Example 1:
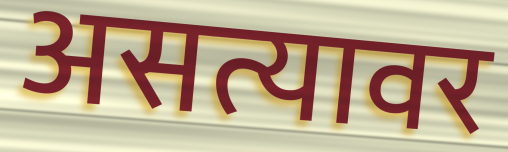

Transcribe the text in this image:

असत्यावर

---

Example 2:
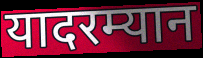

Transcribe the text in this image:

यादरम्यान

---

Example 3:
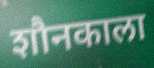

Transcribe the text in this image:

शौनकाला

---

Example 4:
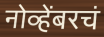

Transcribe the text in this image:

नोव्हेंबरचं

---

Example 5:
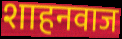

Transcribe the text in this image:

शाहनवाज